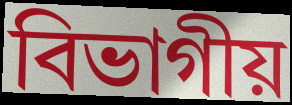
বিভাগীয়